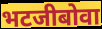
भटजीबोवा